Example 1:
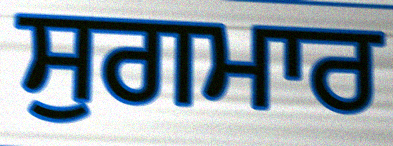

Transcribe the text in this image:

ਸੁਗਮਾਰ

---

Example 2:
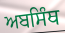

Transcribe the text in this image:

ਅਬਸਿੰਥ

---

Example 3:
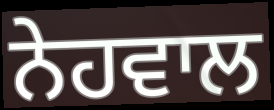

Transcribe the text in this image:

ਨੇਹਵਾਲ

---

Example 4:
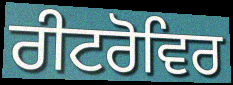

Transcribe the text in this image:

ਰੀਟਰੋਵਿਰ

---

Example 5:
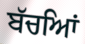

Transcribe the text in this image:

ਬੱਚਆਿਂ